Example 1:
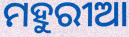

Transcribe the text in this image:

ମହୁରୀଆ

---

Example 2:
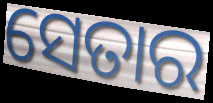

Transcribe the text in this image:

ସେତାର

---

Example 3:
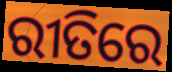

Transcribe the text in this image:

ରୀତିରେ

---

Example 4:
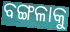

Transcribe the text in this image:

ବଙ୍ଗଳାକୁ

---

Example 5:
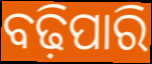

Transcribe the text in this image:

ବଢ଼ିପାରି